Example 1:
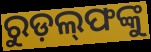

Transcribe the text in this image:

ରୁଡ଼ଲ୍‍ଫଙ୍କୁ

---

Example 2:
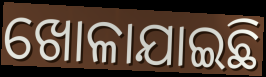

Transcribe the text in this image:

ଖୋଳାଯାଇଛି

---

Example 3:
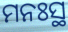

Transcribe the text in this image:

ମନଃସ୍ଥ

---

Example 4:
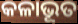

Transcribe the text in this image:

କଳାଭୂତ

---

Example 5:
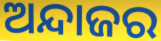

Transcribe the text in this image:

ଅନ୍ଦାଜର